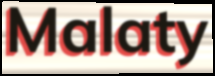
Malaty